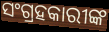
ସଂଗ୍ରହକାରୀଙ୍କ